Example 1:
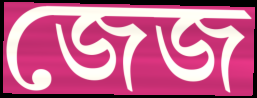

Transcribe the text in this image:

জেজ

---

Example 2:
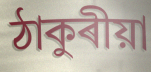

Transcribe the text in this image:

ঠাকুৰীয়া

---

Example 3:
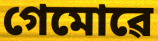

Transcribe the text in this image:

গেমোৱে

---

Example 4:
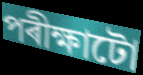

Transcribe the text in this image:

পৰীক্ষাটো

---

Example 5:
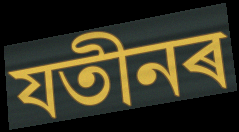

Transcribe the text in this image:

যতীনৰ